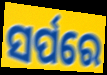
ସର୍ପରେ